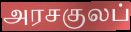
அரசகுலப்